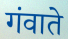
गंवाते